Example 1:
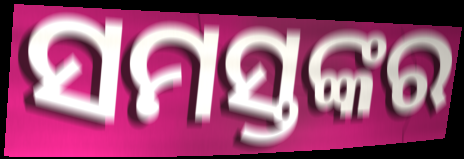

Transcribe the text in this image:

ସମସ୍ତଙ୍କର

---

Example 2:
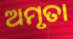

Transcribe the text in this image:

ଅମୃତା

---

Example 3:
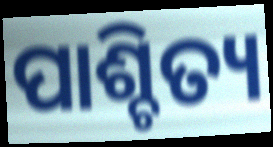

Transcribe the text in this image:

ପାଶ୍ଚିତ୍ୟ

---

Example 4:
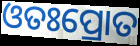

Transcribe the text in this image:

ଓତଃପ୍ରୋତ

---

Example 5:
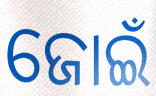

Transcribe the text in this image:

ଜୋଇଁ